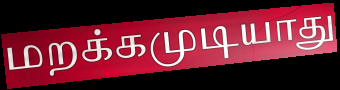
மறக்கமுடியாது